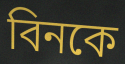
বিনকে